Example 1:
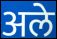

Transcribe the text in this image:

अले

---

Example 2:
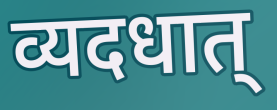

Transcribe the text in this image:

व्यदधात्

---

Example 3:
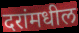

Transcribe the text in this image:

दरांमधील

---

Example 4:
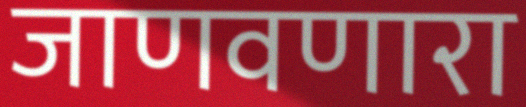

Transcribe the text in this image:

जाणवणारा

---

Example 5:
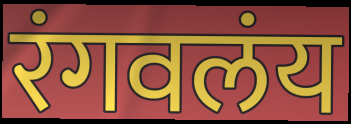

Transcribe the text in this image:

रंगवलंय